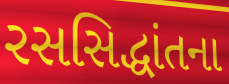
રસસિદ્ધાંતના